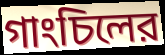
গাংচিলের